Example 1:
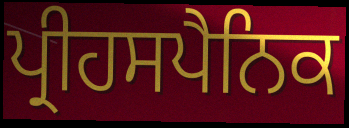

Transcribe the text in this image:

ਪ੍ਰੀਹਸਪੈਨਿਕ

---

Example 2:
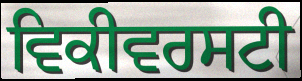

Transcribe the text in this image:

ਵਿਕੀਵਰਸਟੀ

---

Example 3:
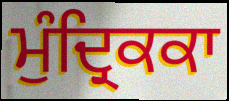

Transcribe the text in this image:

ਮੁੰਦ੍ਰਿਕਕਾ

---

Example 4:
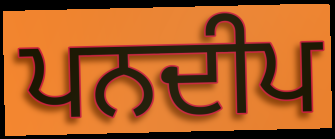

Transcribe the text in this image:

ਪਨਦੀਪ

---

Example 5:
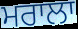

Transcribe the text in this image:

ਮਰਾਲਾ